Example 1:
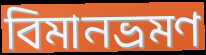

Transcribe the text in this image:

বিমানভ্রমণ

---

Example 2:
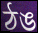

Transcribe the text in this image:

ঠঙ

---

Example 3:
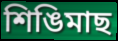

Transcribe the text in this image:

শিঙিমাছ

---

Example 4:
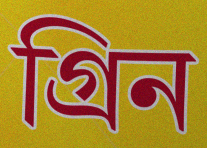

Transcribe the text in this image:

গ্রিন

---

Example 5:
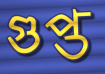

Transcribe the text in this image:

গুপ্ত